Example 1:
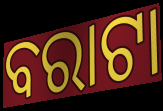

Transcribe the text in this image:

ବରାଟା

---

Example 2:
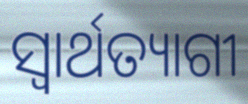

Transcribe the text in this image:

ସ୍ୱାର୍ଥତ୍ୟାଗୀ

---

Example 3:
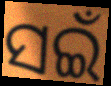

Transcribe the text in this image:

ସଇଁ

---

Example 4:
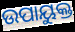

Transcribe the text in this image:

ଉପାୟୁକ୍ତ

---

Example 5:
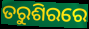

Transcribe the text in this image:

ତରୁଶିରରେ